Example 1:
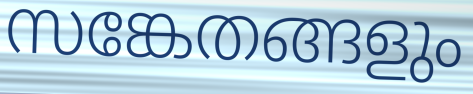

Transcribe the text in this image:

സങ്കേതങ്ങളും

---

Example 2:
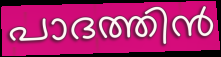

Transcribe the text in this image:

പാദത്തിൻ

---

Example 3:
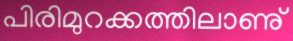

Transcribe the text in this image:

പിരിമുറക്കത്തിലാണു്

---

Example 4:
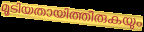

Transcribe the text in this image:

മൂടിയതായിത്തീരുകയും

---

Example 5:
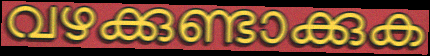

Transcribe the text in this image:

വഴക്കുണ്ടാക്കുക